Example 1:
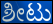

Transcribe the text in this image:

ಶೀಟು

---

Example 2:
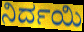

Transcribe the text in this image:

ನಿರ್ದಯಿ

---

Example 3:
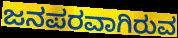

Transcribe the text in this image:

ಜನಪರವಾಗಿರುವ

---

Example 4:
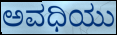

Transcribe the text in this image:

ಅವಧಿಯು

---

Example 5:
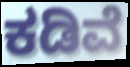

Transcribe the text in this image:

ಕಡಿವೆ